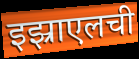
इझ्राएलची